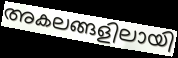
അകലങ്ങളിലായി